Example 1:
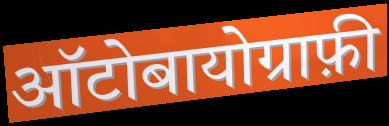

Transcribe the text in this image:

ऑटोबायोग्राफ़ी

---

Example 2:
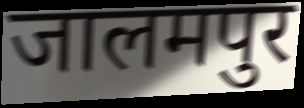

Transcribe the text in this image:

जालमपुर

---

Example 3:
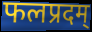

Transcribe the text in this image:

फलप्रदम्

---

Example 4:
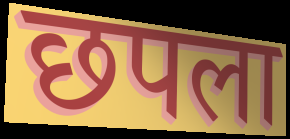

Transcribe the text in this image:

छपला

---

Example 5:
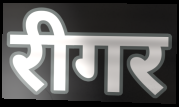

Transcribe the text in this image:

रीगर